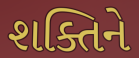
શક્તિને